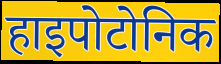
हाइपोटोनिक